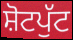
ਸ਼ੋਟਪੁੱਟ